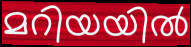
മറിയയിൽ